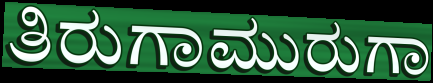
ತಿರುಗಾಮುರುಗಾ